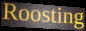
Roosting